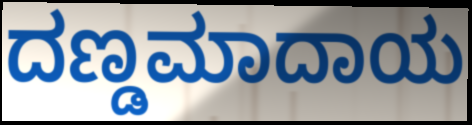
ದಣ್ಡಮಾದಾಯ